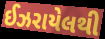
ઈઝરાયેલથી